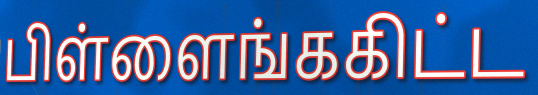
பிள்ளைங்ககிட்ட